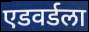
एडवर्डला